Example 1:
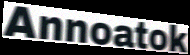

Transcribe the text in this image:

Annoatok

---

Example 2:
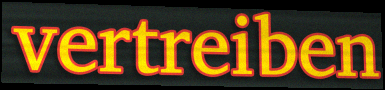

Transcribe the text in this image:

vertreiben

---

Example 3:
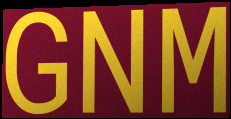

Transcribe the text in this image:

GNM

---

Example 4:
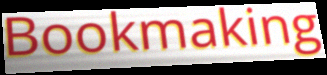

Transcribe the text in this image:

Bookmaking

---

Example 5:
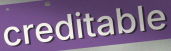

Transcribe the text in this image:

creditable